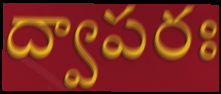
ద్వాపరః